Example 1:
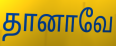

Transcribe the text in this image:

தானாவே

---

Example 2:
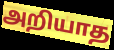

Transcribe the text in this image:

அறியாத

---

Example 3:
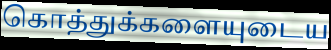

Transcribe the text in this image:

கொத்துக்களையுடைய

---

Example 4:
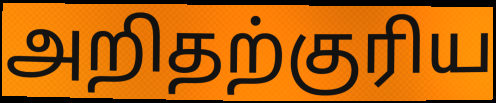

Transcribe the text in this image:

அறிதற்குரிய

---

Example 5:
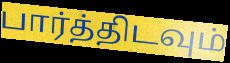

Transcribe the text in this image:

பார்த்திடவும்